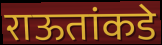
राऊतांकडे